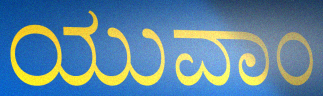
ಯುವಾಂ